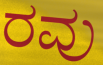
ರವು